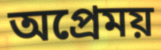
অপ্রেময়